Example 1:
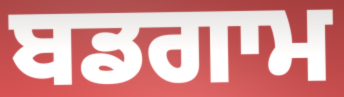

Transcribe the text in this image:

ਬਡਗਾਮ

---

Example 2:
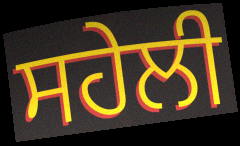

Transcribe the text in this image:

ਸਹੇਲੀ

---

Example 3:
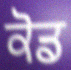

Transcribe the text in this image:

ਕੋਡ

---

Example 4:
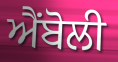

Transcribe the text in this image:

ਐਂਬੋਲੀ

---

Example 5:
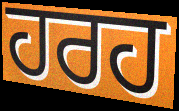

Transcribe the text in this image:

ਹਰਹ